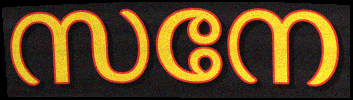
സനേ